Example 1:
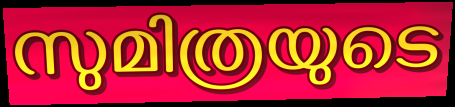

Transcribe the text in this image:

സുമിത്രയുടെ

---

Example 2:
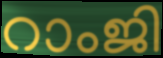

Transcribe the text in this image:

റാംജി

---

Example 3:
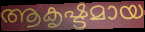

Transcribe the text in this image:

ആകൃഷ്ടമായ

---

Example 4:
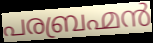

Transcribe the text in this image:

പരബ്രഹ്മൻ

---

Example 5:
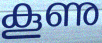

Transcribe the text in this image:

കൂണു